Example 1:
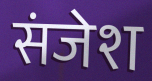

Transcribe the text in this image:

संजेश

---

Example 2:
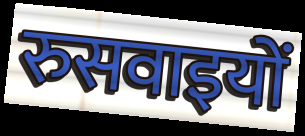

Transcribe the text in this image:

रुसवाइयों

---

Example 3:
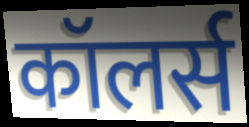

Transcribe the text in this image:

कॉलर्स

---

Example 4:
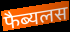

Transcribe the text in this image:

फैब्यलस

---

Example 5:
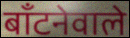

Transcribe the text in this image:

बाँटनेवाले